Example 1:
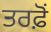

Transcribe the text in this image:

ਤਰਫ਼ੋਂ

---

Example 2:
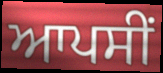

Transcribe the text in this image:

ਆਪਸੀਂ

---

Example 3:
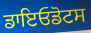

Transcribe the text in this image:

ਡਾਇਓਡੋਟਸ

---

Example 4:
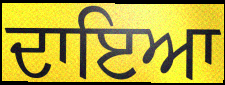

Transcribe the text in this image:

ਦਾਇਆ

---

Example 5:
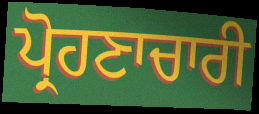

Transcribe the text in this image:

ਪ੍ਰੋਹਣਾਚਾਰੀ